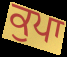
ਕੁਪਾ